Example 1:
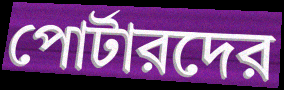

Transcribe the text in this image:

পোর্টারদের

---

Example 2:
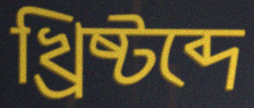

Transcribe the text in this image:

খ্রিষ্টব্দে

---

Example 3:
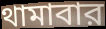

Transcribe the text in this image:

থামাবার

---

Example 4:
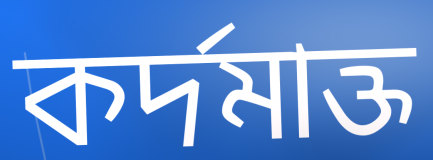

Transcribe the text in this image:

কর্দমাক্ত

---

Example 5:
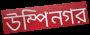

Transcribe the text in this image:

উম্পিনগর